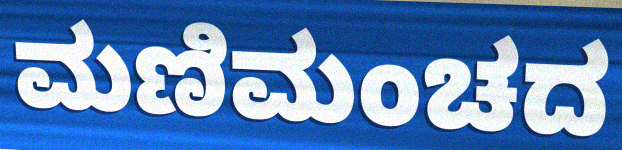
ಮಣಿಮಂಚದ